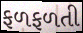
ફળફળતી